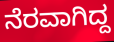
ನೆರವಾಗಿದ್ದ